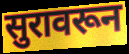
सुरावरून